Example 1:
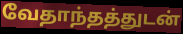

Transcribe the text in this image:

வேதாந்தத்துடன்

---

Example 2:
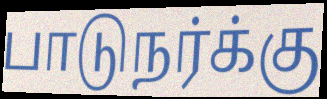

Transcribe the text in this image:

பாடுநர்க்கு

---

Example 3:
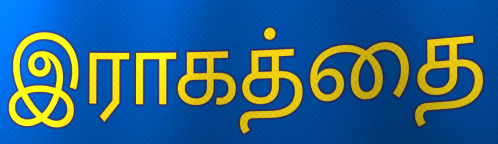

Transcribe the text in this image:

இராகத்தை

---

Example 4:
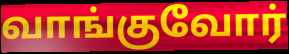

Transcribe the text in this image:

வாங்குவோர்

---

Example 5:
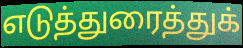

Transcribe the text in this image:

எடுத்துரைத்துக்